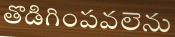
తొడిగింపవలెను